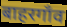
बाहरगाँव